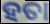
ହତା